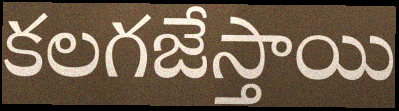
కలగజేస్తాయి